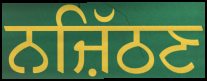
ਨਜ਼ਿੱਠਣ